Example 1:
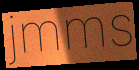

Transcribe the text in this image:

jmms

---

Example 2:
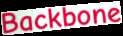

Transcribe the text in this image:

Backbone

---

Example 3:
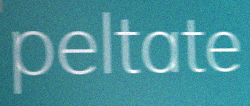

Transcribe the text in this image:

peltate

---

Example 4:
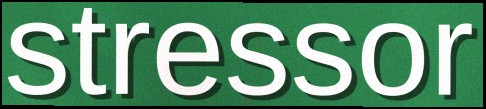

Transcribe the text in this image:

stressor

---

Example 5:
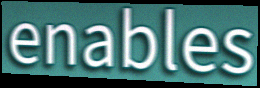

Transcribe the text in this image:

enables